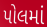
પોલમાં